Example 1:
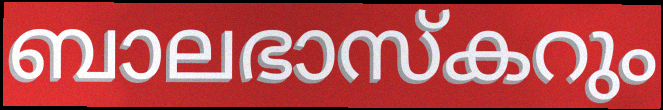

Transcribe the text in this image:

ബാലഭാസ്കറും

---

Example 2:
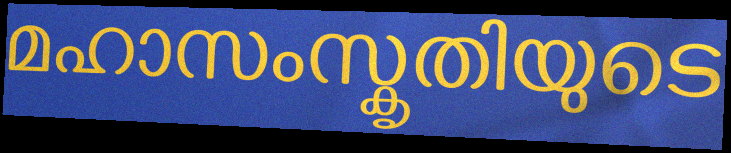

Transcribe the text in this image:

മഹാസംസ്കൃതിയുടെ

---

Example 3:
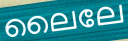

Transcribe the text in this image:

ലൈലേ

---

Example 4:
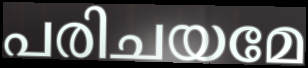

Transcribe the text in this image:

പരിചയമേ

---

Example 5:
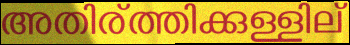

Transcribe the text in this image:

അതിര്ത്തിക്കുള്ളില്